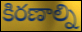
కిరణాల్ని